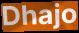
Dhajo